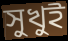
সুখুই